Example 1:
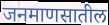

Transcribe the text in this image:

जनमाणसातील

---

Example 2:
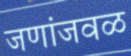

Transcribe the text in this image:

जणांजवळ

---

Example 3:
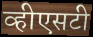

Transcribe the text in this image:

व्हीएसटी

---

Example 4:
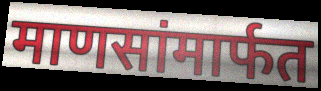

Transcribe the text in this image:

माणसांमार्फत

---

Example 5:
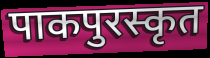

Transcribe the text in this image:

पाकपुरस्कृत